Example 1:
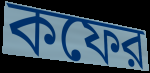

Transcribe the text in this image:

কফের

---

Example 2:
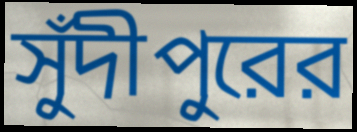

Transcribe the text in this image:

সুঁদীপুরের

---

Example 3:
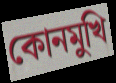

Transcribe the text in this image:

কোনমুখি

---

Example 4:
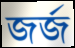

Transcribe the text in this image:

জর্জ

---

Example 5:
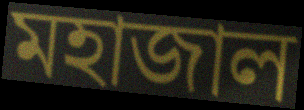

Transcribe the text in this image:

মহাজাল